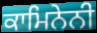
ਕਾਮਿਨੇਨੀ